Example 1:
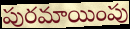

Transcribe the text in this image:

పురమాయింపు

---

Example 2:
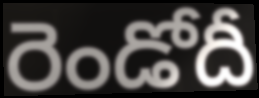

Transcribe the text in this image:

రెండోదీ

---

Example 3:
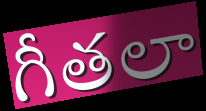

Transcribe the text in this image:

గీతలా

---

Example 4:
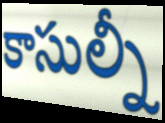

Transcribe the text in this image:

కాసుల్నీ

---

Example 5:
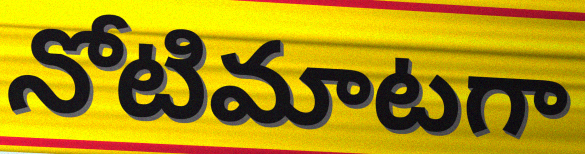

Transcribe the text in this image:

నోటిమాటగా